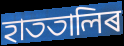
হাততালিৰ